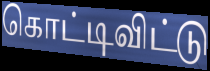
கொட்டிவிட்டு